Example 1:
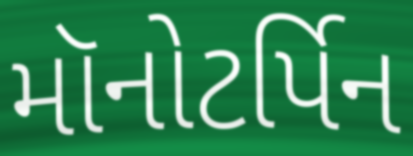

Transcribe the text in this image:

મૉનોટર્પિન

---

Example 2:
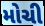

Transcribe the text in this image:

મોચી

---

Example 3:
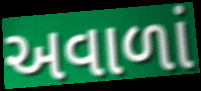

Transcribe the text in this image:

અવાળાં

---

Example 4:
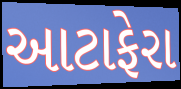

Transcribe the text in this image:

આટાફેરા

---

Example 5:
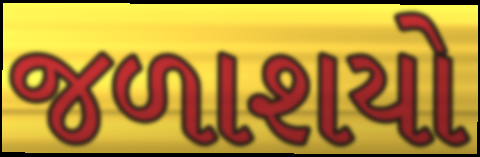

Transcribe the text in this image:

જળાશયો